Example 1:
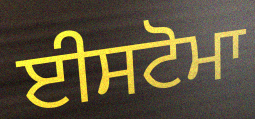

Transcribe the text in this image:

ਈਸਟੋਮਾ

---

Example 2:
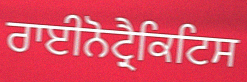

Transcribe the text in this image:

ਰਾਈਨੋਟ੍ਰੈਕਿਟਿਸ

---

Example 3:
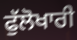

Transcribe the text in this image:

ਫੁੱਲੋਖਾਰੀ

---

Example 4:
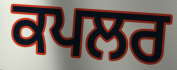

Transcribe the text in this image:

ਕਪਲਰ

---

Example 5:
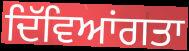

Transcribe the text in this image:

ਦਿੱਵਿਆਂਗਤਾ